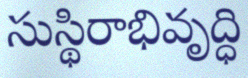
సుస్థిరాభివృద్ధి